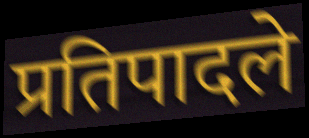
प्रतिपादले